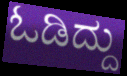
ಓಡಿದ್ದು